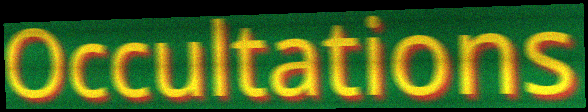
Occultations